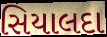
સિયાલદા